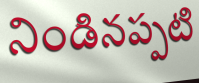
నిండినప్పటి